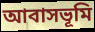
আবাসভূমি